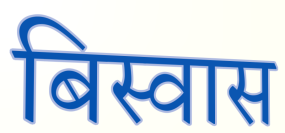
बिस्वास